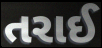
તરાઈ